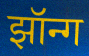
झॉन्ग